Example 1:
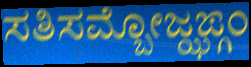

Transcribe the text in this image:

ಸತಿಸಮ್ಬೋಜ್ಝಙ್ಗಂ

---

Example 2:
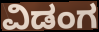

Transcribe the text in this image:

ವಿಡಂಗ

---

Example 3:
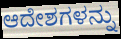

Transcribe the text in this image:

ಆದೇಶಗಳನ್ನು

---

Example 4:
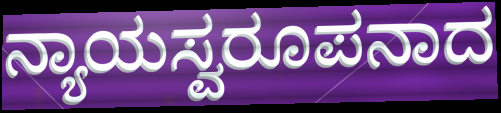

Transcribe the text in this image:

ನ್ಯಾಯಸ್ವರೂಪನಾದ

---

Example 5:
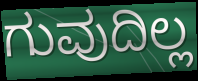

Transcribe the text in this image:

ಗುವುದಿಲ್ಲ